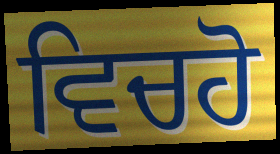
ਵਿਚਹੋ